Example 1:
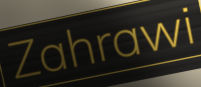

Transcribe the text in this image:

Zahrawi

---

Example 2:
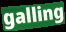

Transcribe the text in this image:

galling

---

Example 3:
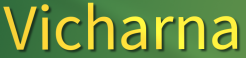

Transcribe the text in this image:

Vicharna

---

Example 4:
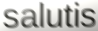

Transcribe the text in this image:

salutis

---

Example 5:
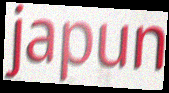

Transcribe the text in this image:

japun